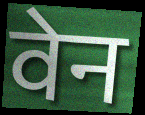
वेन